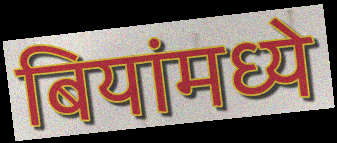
बियांमध्ये